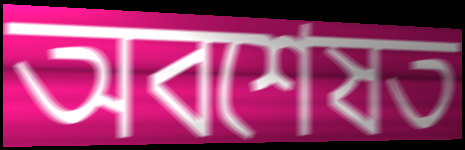
অবশেষত